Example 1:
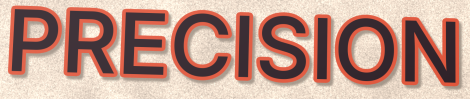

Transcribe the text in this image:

PRECISION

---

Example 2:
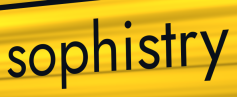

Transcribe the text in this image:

sophistry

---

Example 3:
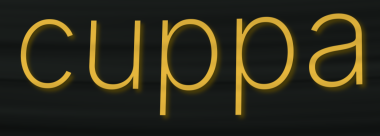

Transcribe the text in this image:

cuppa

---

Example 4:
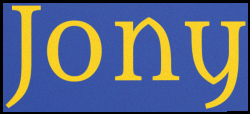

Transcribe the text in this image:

Jony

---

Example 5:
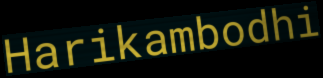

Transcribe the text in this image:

Harikambodhi